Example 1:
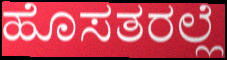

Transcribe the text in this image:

ಹೊಸತರಲ್ಲೆ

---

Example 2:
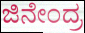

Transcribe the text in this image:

ಜಿನೇಂದ್ರ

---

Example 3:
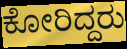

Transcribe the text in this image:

ಕೋರಿದ್ದರು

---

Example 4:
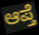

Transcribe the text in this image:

ಆಪ್ತೆ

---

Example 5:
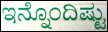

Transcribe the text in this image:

ಇನ್ನೊಂದಿಷ್ಟು